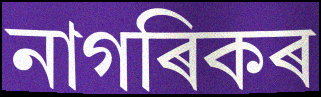
নাগৰিকৰ